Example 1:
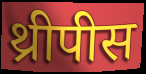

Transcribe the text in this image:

थ्रीपीस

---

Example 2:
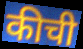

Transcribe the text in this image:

कीची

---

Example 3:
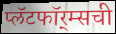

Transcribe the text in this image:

प्लॅटफॉर्म्सची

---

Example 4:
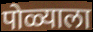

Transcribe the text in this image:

पोळ्याला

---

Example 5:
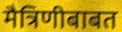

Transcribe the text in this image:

मैत्रिणीबाबत